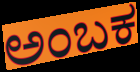
ಅಂಬಕ